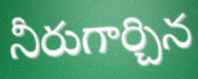
నీరుగార్చిన